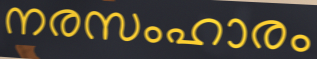
നരസംഹാരം